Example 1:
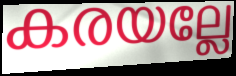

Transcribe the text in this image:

കരയല്ലേ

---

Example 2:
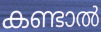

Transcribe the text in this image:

കണ്ടാൽ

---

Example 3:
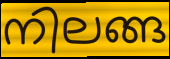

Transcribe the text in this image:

നിലങ്ങ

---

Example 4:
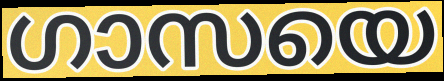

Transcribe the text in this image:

ഗാസയെ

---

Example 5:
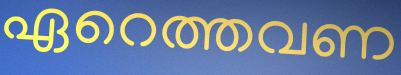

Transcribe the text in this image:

ഏറെത്തവണ